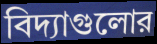
বিদ্যাগুলোর